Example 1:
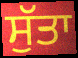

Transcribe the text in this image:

ਸੁੱਤਾ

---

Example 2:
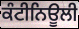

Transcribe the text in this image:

ਕੰਟੀਨਿਊਲੀ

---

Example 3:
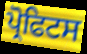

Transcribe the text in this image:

ਪ੍ਰੋਫਿਟਸ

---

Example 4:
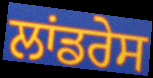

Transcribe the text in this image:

ਲਾਂਡਰੇਸ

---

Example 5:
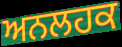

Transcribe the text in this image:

ਅਨਲਹਕ